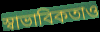
স্বাভাবিকতাও